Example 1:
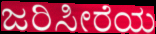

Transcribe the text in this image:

ಜರಿಸೀರೆಯ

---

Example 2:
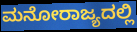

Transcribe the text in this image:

ಮನೋರಾಜ್ಯದಲ್ಲಿ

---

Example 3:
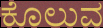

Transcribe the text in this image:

ಕೊಲುವ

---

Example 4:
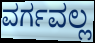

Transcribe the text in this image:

ವರ್ಗವಲ್ಲ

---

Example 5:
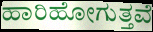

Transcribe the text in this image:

ಹಾರಿಹೋಗುತ್ತವೆ